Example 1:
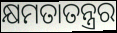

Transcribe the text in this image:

କ୍ଷମତାତନ୍ତ୍ରର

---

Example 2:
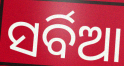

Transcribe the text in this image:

ସର୍ବିଆ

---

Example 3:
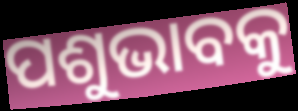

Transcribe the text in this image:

ପଶୁଭାବକୁ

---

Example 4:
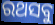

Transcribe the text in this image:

ରଥସବୁ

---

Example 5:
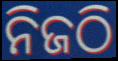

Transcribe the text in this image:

ନିଜଠି